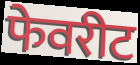
फेवरीट